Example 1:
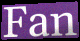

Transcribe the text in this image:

Fan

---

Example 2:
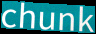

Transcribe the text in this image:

chunk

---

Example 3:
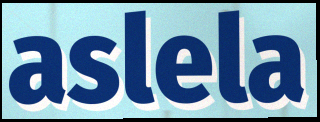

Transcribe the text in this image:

aslela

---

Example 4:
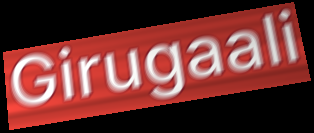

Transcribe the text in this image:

Girugaali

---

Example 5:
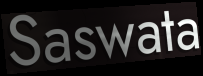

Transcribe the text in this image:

Saswata